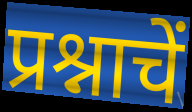
प्रश्नाचें